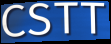
CSTT